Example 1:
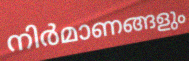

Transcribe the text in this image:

നിർമാണങ്ങളും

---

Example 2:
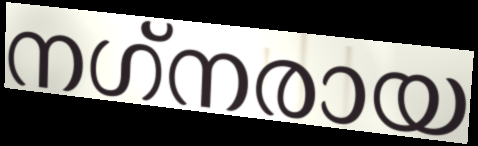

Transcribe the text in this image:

നഗ്‌നരായ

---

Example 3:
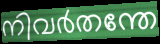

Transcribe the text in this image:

നിവർതന്തേ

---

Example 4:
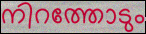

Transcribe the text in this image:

നിറത്തോടും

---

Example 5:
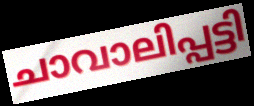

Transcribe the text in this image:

ചാവാലിപ്പട്ടി